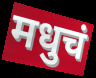
मधुचं